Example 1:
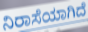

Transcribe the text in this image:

ನಿರಾಸೆಯಾಗಿದೆ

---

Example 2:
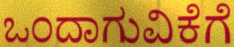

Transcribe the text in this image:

ಒಂದಾಗುವಿಕೆಗೆ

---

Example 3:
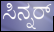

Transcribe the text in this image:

ಸಿನ್ನರ್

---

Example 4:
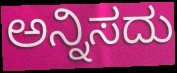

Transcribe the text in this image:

ಅನ್ನಿಸದು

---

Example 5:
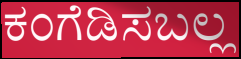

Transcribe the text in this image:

ಕಂಗೆಡಿಸಬಲ್ಲ